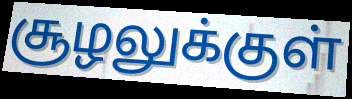
சூழலுக்குள்